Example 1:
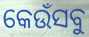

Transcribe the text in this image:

କେଉଁସବୁ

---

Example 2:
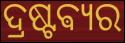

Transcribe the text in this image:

ଦ୍ରଷ୍ଟଵ୍ୟର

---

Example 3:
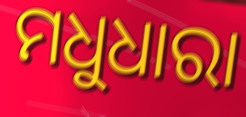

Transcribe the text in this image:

ମଧୁଧାରା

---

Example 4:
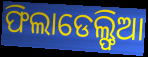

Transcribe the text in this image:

ଫିଲାଡେଲ୍ଫିଆ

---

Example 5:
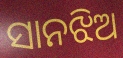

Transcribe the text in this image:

ସାନଝିଅ